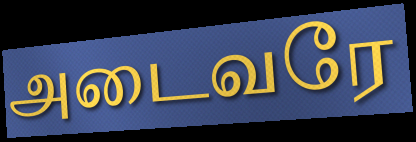
அடைவரே